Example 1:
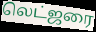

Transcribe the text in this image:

லெட்ஜரை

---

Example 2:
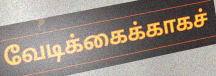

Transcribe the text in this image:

வேடிக்கைக்காகச்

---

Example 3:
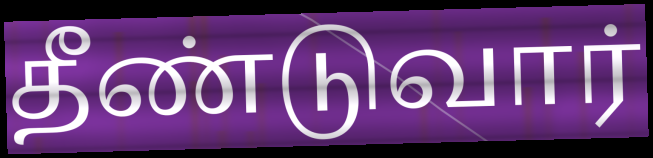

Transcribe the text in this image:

தீண்டுவார்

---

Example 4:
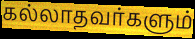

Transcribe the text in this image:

கல்லாதவர்களும்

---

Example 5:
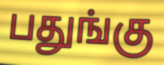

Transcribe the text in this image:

பதுங்கு